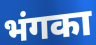
भंगका